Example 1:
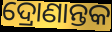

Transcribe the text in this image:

ଦ୍ରୋଣାନ୍ତକ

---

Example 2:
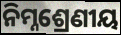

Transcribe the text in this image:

ନିମ୍ନଶ୍ରେଣୀୟ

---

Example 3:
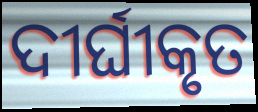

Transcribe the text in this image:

ଦୀର୍ଘୀକୃତ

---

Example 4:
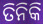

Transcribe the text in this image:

ତିନିକି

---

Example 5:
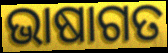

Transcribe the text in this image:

ଭାଷାଗତ